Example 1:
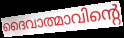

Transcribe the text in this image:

ദൈവാത്മാവിന്റെ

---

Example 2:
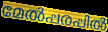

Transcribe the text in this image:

മേൽപ്പരപ്പിൽ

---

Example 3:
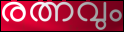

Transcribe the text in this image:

രത്നവും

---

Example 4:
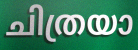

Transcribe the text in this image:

ചിത്രയാ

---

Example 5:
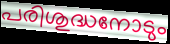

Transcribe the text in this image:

പരിശുദ്ധനോടും